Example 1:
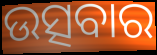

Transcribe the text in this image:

ଉତ୍ସବାର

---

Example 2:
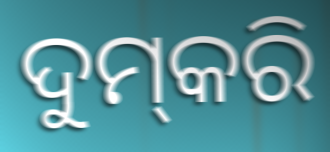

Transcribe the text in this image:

ଦୁମ୍‍କରି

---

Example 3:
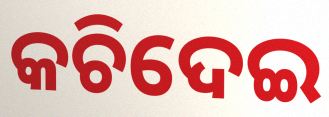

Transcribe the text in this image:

କଚିଦେଇ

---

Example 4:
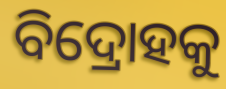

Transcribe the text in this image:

ବିଦ୍ରୋହକୁ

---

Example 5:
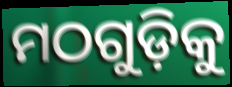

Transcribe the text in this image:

ମଠଗୁଡ଼ିକୁ